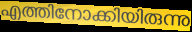
എത്തിനോക്കിയിരുന്നു